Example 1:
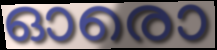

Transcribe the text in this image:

ഓരൊ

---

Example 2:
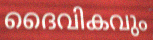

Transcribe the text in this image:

ദൈവികവും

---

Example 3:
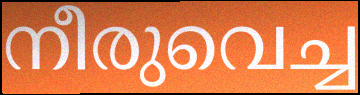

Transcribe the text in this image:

നീരുവെച്ച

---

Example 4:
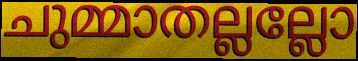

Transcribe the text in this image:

ചുമ്മാതല്ലല്ലോ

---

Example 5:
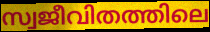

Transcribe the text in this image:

സ്വജീവിതത്തിലെ